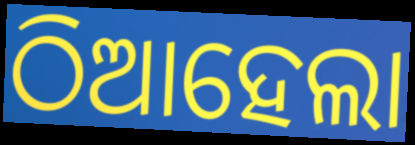
ଠିଆହେଲା